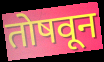
तोषवून